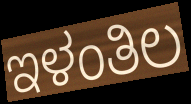
ಇಳಂತಿಲ